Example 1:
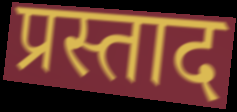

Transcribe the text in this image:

प्रस्ताद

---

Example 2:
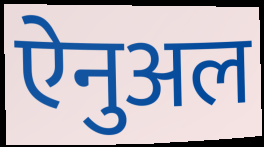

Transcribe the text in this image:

ऐनुअल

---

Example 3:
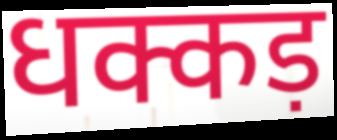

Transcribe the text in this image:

धक्कड़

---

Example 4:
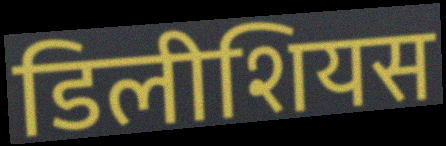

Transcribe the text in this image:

डिलीशियस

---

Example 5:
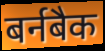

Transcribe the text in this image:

बर्नबैक